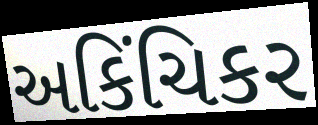
અકિંચિકર